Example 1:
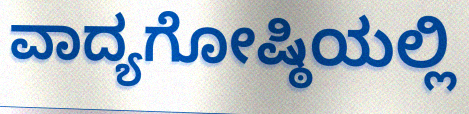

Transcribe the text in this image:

ವಾದ್ಯಗೋಷ್ಠಿಯಲ್ಲಿ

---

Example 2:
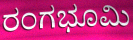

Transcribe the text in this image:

ರಂಗಭೂಮಿ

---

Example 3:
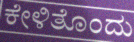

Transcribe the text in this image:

ಕೇಳಿತೊಂದು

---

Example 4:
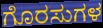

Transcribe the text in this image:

ಗೊರಸುಗಳ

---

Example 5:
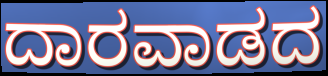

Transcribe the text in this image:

ದಾರವಾಡದ